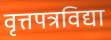
वृत्तपत्रविद्या